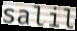
salil